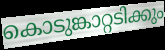
കൊടുങ്കാറ്റടിക്കും